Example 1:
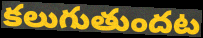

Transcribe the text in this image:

కలుగుతుందట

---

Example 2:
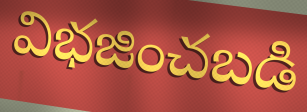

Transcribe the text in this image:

విభజించబడి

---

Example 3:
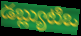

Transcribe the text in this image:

డబ్ల్యుటిఒ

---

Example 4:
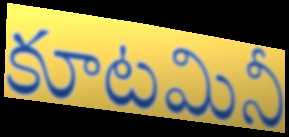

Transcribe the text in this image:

కూటమినీ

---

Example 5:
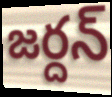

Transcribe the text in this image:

జర్దన్